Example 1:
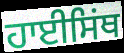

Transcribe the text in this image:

ਹਾਈਸਿਂਥ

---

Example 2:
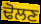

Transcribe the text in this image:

ਢੋਲਣ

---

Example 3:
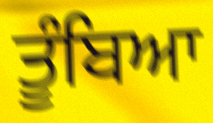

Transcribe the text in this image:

ਤੂੰਬਿਆ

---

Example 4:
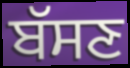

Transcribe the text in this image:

ਬੱਸਣ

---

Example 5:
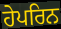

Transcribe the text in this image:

ਹੇਪਰਿਨ